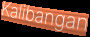
Kalibangan